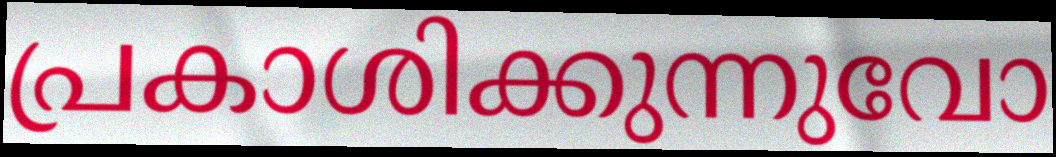
പ്രകാശിക്കുന്നുവോ